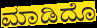
ಮಾಡಿದೊ